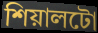
শিয়ালটো